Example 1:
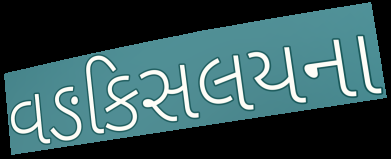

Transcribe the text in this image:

વઙકિસલયના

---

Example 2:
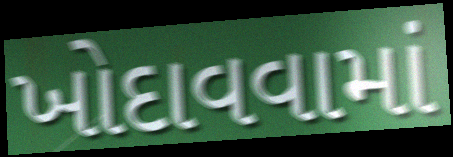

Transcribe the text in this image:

ખોદાવવામાં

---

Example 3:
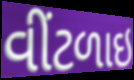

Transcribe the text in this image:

વીંટળાઇ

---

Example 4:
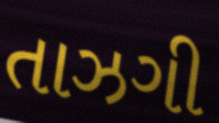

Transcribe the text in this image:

તાઝગી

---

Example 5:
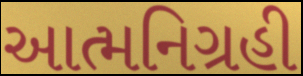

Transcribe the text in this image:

આત્મનિગ્રહી